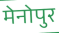
मेनोपुर